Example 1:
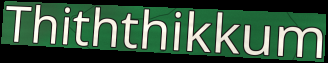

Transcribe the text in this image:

Thiththikkum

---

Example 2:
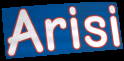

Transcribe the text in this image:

Arisi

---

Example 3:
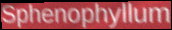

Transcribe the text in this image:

Sphenophyllum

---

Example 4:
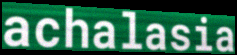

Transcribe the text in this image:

achalasia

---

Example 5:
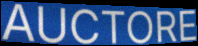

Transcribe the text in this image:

AUCTORE